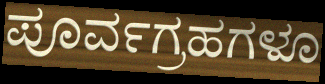
ಪೂರ್ವಗ್ರಹಗಳೂ